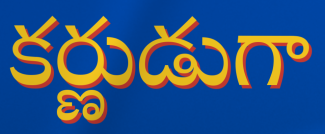
కర్ణుడుగా